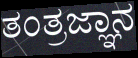
ತಂತ್ರಜ್ಞಾನ